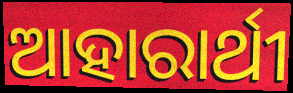
ଆହାରାର୍ଥୀ